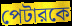
পেটারকে